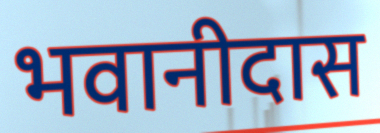
भवानीदास